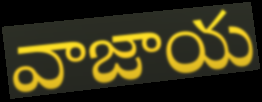
వాజాయ